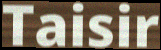
Taisir